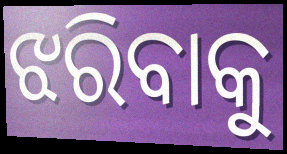
ଝରିବାକୁ